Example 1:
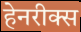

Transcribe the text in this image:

हेनरीक्स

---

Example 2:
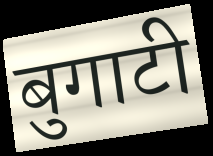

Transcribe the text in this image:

बुगाटी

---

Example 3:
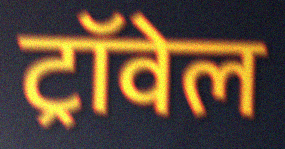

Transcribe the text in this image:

ट्रॉवेल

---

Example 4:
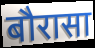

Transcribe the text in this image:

बौरासा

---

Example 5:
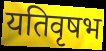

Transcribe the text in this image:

यतिवृषभ